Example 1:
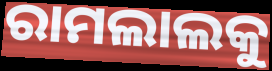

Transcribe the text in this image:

ରାମଲାଲକୁ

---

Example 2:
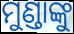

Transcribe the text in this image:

ମୁଣ୍ଡାଙ୍କୁ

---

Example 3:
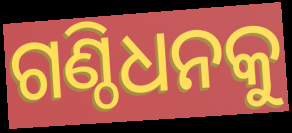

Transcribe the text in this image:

ଗଣ୍ଠିଧନକୁ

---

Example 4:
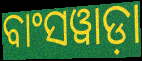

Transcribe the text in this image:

ବାଂସୱାଡ଼ା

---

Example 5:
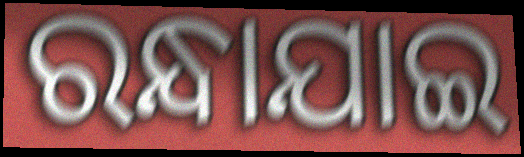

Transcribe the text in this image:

ରନ୍ଧାଯାଇ